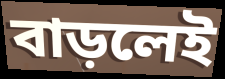
বাড়লেই